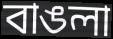
বাঙলা